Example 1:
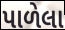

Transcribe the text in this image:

પાળેલા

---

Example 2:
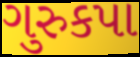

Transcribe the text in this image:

ગુરુકપા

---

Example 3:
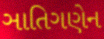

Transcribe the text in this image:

ઞાતિગણેન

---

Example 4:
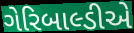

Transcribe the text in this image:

ગેરિબાલ્ડીએ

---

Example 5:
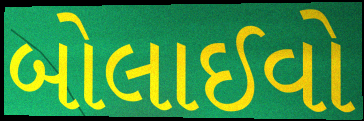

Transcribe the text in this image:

બોલાઈવો